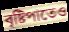
বৃষ্টিপাতেও